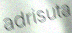
adrisuta